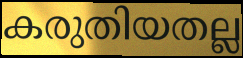
കരുതിയതല്ല